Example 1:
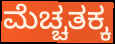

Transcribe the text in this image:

ಮೆಚ್ಚತಕ್ಕ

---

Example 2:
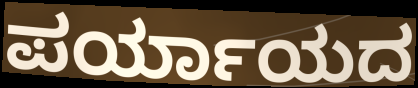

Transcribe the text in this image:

ಪರ್ಯಾಯದ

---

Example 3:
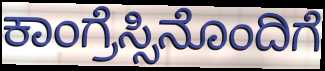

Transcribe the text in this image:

ಕಾಂಗ್ರೆಸ್ಸಿನೊಂದಿಗೆ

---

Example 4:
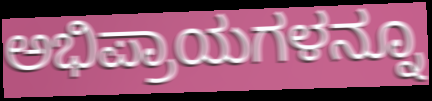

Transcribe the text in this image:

ಅಭಿಪ್ರಾಯಗಳನ್ನೂ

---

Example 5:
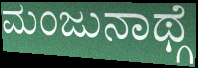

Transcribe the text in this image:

ಮಂಜುನಾಥ್ಗೆ